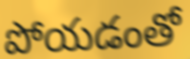
పోయడంతో